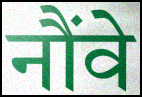
नौंवे